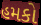
હમકો